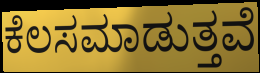
ಕೆಲಸಮಾಡುತ್ತವೆ